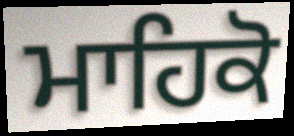
ਮਾਹਿਕੋ